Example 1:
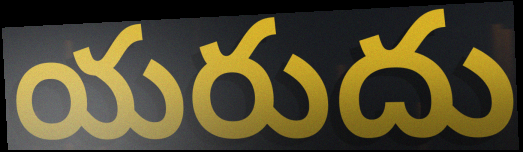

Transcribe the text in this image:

యరుదు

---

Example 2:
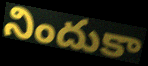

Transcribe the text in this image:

నిందుకా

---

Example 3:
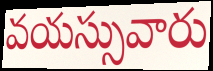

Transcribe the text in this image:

వయస్సువారు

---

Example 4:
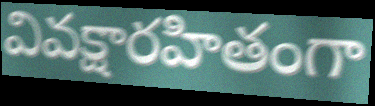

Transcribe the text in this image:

వివక్షారహితంగా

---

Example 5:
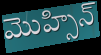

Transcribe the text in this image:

మొహ్సిన్